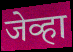
जेव्हा